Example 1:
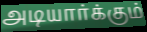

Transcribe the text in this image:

அடியார்க்கும்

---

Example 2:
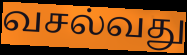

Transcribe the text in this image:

வசல்வது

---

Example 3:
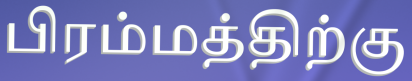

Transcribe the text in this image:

பிரம்மத்திற்கு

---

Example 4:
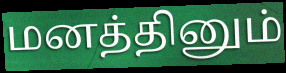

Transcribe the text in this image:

மனத்தினும்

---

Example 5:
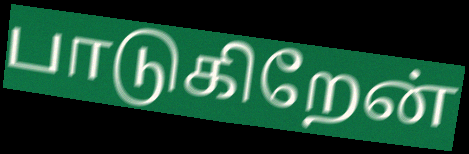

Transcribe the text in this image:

பாடுகிறேன்